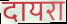
दायरा